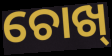
ଚୋଖ୍